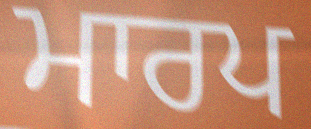
ਮਾਰਪ